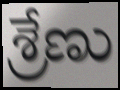
శ్రేణు